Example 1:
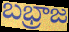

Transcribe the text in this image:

బభ్రాజ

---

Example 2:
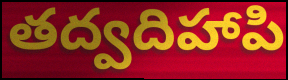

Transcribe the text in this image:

తద్వదిహాపి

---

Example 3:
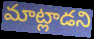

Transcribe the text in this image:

మాట్లాడని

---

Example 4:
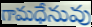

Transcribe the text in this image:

గామధేనువు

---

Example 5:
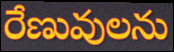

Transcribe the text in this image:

రేణువులను